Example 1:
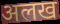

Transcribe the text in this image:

अलख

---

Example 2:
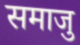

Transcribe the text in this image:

समाजु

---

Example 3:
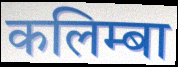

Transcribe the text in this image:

कलिम्बा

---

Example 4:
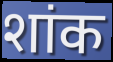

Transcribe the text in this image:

शांक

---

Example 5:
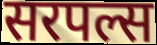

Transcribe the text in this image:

सरपल्स